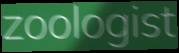
zoologist